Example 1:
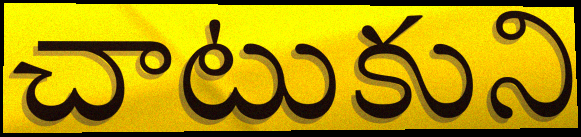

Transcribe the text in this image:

చాటుకుని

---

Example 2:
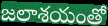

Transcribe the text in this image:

జలాశయంతో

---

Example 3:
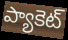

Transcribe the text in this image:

ప్యాకెట్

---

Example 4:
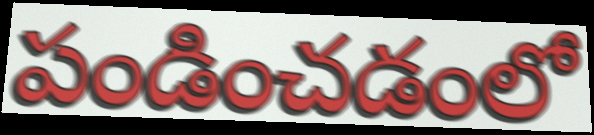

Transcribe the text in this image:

పండించడంలో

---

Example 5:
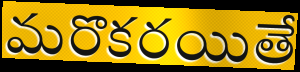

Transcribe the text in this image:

మరొకరయితే